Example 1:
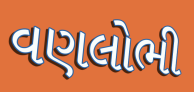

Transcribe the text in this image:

વણલોભી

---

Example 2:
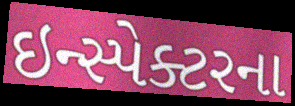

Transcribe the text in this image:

ઇન્સ્પેક્ટરના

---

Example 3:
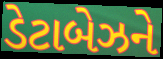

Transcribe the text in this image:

ડેટાબેઝને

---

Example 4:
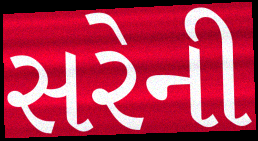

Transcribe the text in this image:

સરેની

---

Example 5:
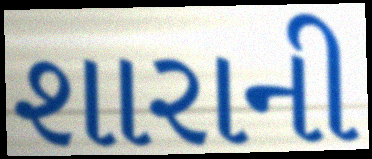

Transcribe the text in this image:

શારાની